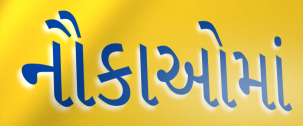
નૌકાઓમાં